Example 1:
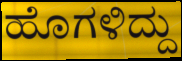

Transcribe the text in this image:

ಹೊಗಳಿದ್ದು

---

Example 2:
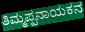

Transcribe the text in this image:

ತಿಮ್ಮಪ್ಪನಾಯಕನ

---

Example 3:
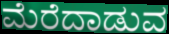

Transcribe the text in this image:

ಮೆರೆದಾಡುವ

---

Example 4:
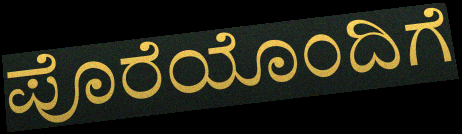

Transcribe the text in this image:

ಪೊರೆಯೊಂದಿಗೆ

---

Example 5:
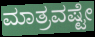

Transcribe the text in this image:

ಮಾತ್ರವಷ್ಟೇ